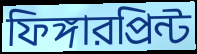
ফিঙ্গারপ্রিন্ট